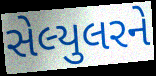
સેલ્યુલરને